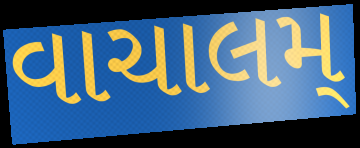
વાચાલમ્